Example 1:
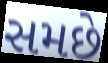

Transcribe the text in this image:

સમછે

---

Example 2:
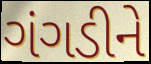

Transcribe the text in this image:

ગંગડીને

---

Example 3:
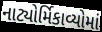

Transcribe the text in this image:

નાટ્યોર્મિકાવ્યોમાં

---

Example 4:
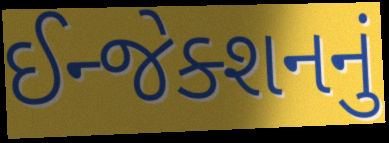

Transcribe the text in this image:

ઈન્જેક્શનનું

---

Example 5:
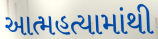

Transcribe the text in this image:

આત્મહત્યામાંથી